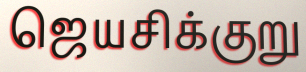
ஜெயசிக்குறு